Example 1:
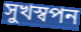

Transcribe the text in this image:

সুখস্বপন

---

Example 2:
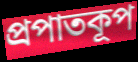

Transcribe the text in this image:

প্রপাতকূপ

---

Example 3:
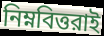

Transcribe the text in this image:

নিম্নবিত্তরাই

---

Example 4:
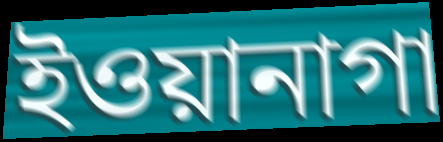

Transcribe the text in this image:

ইওয়ানাগা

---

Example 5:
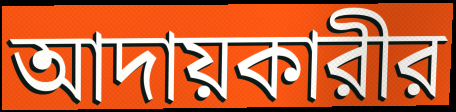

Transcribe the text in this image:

আদায়কারীর